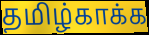
தமிழ்காக்க